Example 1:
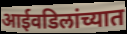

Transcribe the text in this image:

आईवडिलांच्यात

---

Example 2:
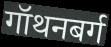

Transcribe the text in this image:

गॉथनबर्ग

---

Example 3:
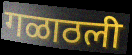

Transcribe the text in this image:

गळाठली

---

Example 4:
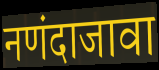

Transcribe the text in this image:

नणंदाजावा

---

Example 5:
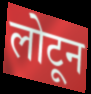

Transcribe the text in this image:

लोटून